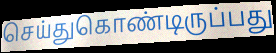
செய்துகொண்டிருப்பது